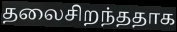
தலைசிறந்ததாக